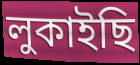
লুকাইছি